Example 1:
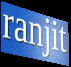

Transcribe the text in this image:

ranjit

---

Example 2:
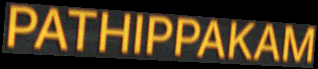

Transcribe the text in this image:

PATHIPPAKAM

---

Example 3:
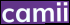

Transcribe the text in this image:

camii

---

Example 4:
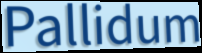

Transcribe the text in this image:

Pallidum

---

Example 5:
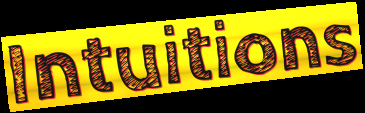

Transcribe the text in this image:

Intuitions